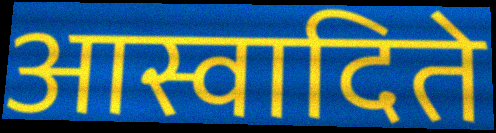
आस्वादिते